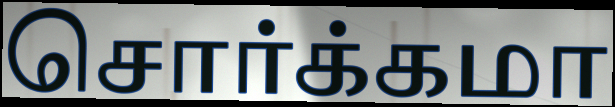
சொர்க்கமா